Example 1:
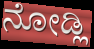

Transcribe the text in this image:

ನೋಡ್ಲಿ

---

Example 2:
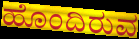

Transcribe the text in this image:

ಹೊಂದಿರುವ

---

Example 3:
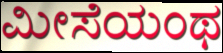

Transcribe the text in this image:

ಮೀಸೆಯಂಥ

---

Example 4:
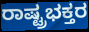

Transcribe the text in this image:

ರಾಷ್ಟ್ರಭಕ್ತರ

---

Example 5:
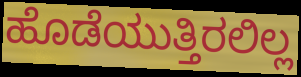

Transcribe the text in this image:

ಹೊಡೆಯುತ್ತಿರಲಿಲ್ಲ